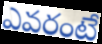
ఎవరంటే